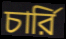
চার্রি